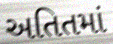
અતિતમાં